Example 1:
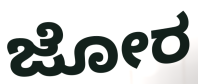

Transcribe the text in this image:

ಜೋರ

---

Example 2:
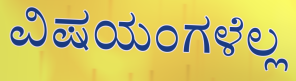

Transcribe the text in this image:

ವಿಷಯಂಗಳೆಲ್ಲ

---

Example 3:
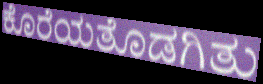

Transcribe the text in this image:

ಕೊರೆಯತೊಡಗಿತು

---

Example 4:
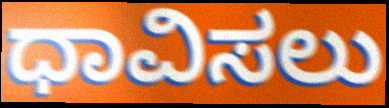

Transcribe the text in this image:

ಧಾವಿಸಲು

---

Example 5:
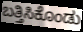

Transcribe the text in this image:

ಬತ್ತಿಸಿಕೊಂಡು